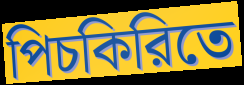
পিচকিরিতে